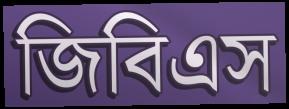
জিবিএস